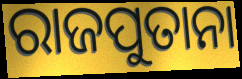
ରାଜପୁତାନା